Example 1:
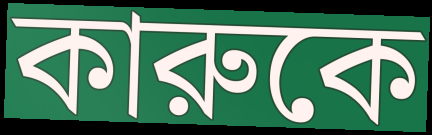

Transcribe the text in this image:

কারুকে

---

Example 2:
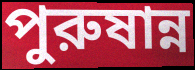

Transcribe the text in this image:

পুরুষান্ন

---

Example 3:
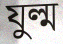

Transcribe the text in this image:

যুল্ম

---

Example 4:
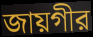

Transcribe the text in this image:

জায়গীর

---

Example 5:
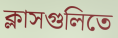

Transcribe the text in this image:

ক্লাসগুলিতে